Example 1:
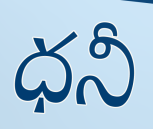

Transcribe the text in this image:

ధనీ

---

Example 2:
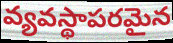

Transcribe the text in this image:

వ్యవస్థాపరమైన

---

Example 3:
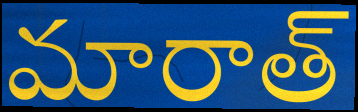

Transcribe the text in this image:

మారాత్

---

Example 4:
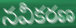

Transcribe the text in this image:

నవీకరణ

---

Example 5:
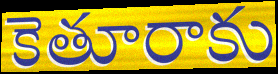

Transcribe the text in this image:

కెతూరాకు